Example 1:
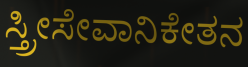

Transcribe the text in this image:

ಸ್ತ್ರೀಸೇವಾನಿಕೇತನ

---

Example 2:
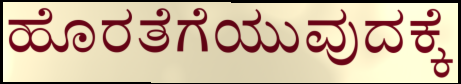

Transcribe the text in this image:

ಹೊರತೆಗೆಯುವುದಕ್ಕೆ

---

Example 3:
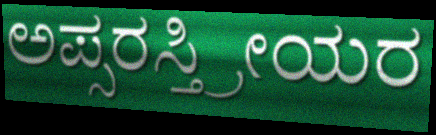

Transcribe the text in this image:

ಅಪ್ಸರಸ್ತ್ರೀಯರ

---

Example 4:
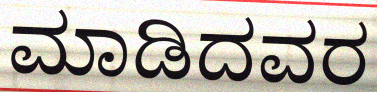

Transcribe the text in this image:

ಮಾಡಿದವರ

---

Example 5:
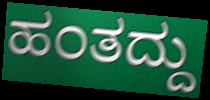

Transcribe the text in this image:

ಹಂತದ್ದು